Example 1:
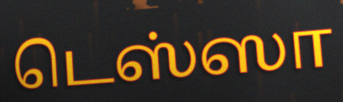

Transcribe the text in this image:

டெஸ்ஸா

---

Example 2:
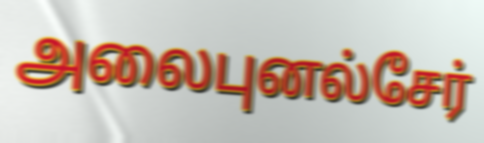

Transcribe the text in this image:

அலைபுனல்சேர்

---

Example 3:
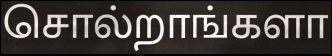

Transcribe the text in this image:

சொல்றாங்களா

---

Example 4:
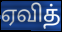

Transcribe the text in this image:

ஏவித்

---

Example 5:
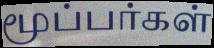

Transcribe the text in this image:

மூப்பர்கள்